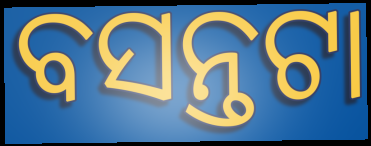
ବସନ୍ତଟା